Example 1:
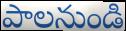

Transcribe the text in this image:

పాలనుండి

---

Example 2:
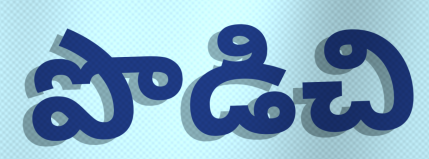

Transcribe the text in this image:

పొడిచి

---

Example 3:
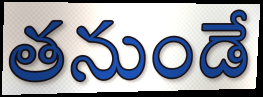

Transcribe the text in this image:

తనుండే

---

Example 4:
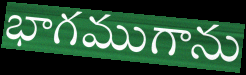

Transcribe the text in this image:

భాగముగాను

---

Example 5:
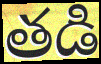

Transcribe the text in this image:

తడి